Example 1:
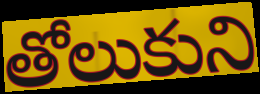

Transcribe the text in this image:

తోలుకుని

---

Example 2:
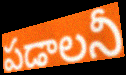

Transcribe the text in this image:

పడాలనీ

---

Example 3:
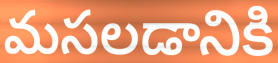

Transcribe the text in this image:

మసలడానికి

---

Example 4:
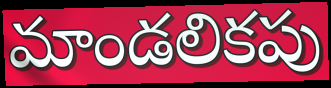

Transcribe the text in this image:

మాండలికపు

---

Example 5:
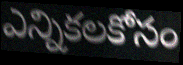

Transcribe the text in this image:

ఎన్నికలకోసం